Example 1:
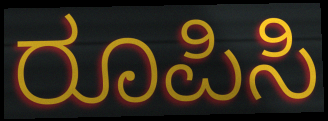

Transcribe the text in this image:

ರೂಪಿಸಿ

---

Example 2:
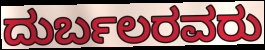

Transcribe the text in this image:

ದುರ್ಬಲರವರು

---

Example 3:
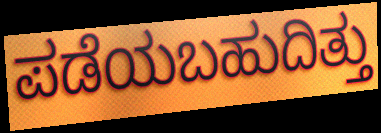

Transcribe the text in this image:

ಪಡೆಯಬಹುದಿತ್ತು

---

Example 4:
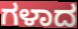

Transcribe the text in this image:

ಗಳಾದ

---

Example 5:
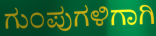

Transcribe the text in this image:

ಗುಂಪುಗಳಿಗಾಗಿ